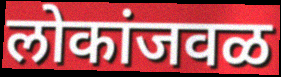
लोकांजवळ